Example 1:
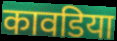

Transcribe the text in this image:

कावडिया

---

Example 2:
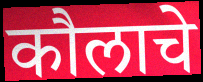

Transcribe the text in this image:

कौलाचे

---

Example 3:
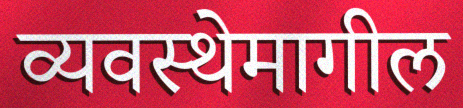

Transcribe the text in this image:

व्यवस्थेमागील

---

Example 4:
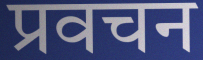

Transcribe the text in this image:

प्रवचन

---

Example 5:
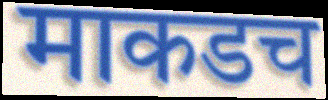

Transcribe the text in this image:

माकडच